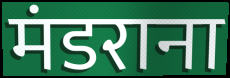
मंडराना